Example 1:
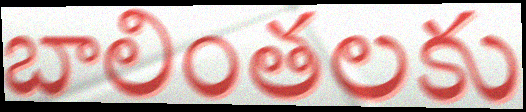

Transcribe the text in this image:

బాలింతలకు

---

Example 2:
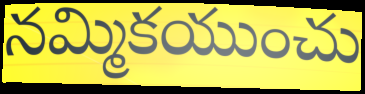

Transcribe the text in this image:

నమ్మికయుంచు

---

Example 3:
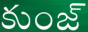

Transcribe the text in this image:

కుంజ్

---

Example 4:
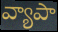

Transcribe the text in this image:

వ్యాపా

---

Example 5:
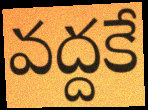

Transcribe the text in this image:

వద్దకే